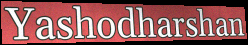
Yashodharshan